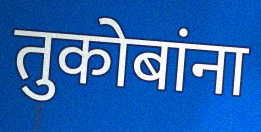
तुकोबांना